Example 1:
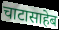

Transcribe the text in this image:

चाटासाहेब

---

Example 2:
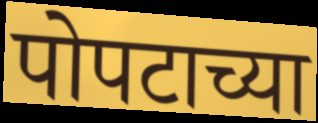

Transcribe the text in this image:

पोपटाच्या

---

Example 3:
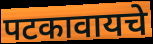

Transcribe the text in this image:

पटकावायचे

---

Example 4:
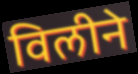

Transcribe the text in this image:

विलीने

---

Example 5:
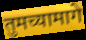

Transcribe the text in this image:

तुमच्यामागे